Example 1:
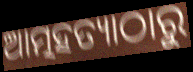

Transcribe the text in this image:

ଆତ୍ମହତ୍ୟାଠାରୁ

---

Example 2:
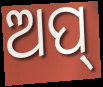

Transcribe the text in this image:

ଅପ୍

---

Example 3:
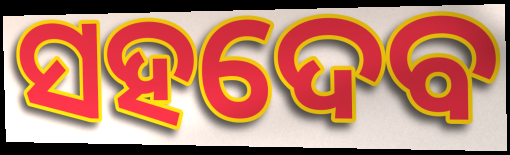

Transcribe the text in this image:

ସହଦେବ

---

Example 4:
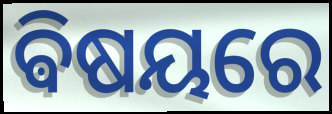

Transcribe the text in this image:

ଵିଷୟରେ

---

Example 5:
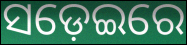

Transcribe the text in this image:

ସଡ଼େଇରେ